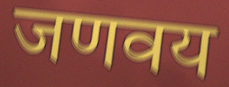
जणवय